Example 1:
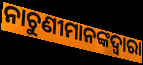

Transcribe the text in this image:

ନାଚୁଣୀମାନଙ୍କଦ୍ୱାରା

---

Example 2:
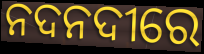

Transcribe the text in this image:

ନଦନଦୀରେ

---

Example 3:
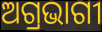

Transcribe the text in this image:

ଅଗ୍ରଭାଗୀ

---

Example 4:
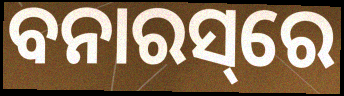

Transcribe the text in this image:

ବନାରସ୍‌ରେ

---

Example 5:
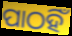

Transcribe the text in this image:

ପାଠହିଁ